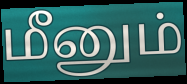
மீனும்